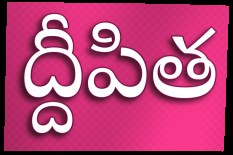
ద్దీపిత